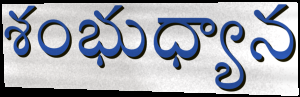
శంభుధ్యాన